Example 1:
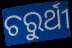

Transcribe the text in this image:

ଚରୁର୍ଥୀ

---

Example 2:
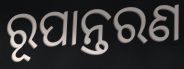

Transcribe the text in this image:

ରୂପାନ୍ତରଣ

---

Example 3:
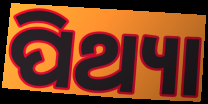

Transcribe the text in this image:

ପିଥ୍ୟା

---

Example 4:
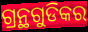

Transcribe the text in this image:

ଗ୍ରନ୍ଥଗୁଡିକର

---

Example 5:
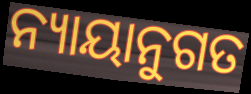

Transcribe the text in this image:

ନ୍ୟାୟାନୁଗତ